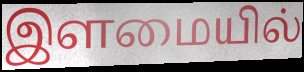
இளமையில்